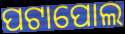
ପଟାପୋଲ